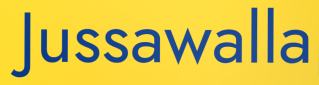
Jussawalla